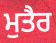
ਮੁਤੈਰ